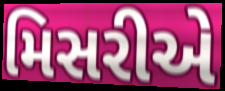
મિસરીએ